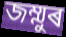
জম্মুৰ